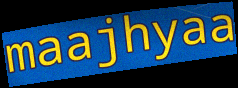
maajhyaa